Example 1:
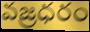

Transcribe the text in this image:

వజ్రధరం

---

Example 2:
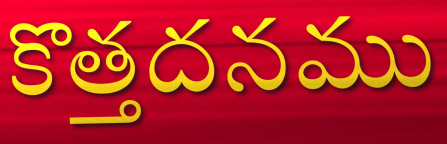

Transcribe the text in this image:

కొత్తదనము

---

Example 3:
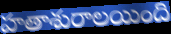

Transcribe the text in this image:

హతాశురాలయింది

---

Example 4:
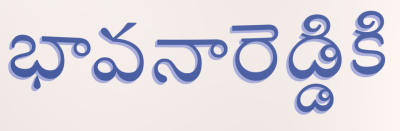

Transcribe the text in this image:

భావనారెడ్డికి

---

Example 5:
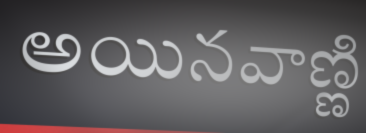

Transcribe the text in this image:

అయినవాణ్ణి